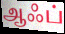
ஆஃப்